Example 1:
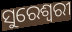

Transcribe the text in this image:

ସୁରେଶ୍ଵରୀ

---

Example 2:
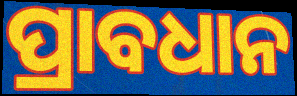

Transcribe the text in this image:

ପ୍ରାବଧାନ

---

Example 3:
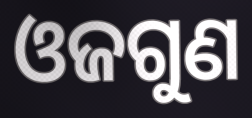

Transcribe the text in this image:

ଓଜଗୁଣ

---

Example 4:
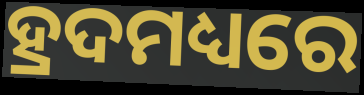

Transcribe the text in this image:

ହ୍ରଦମଧ୍ୟରେ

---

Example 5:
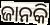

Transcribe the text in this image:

ଜାନକି